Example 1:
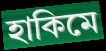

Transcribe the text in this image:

হাকিমে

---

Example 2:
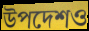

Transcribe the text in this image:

উপদেশও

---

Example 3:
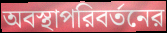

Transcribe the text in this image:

অবস্থাপরিবর্তনের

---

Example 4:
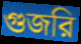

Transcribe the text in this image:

গুজরি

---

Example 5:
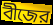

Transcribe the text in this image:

বীজের